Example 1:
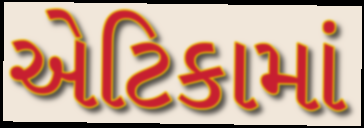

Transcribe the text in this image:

એટિકામાં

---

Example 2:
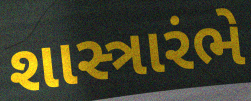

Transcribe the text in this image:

શાસ્ત્રારંભે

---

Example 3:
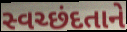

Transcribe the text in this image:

સ્વચ્છંદતાને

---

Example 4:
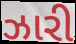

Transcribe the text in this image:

ઝારી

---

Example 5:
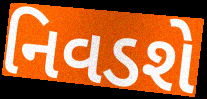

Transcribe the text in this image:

નિવડશે